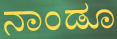
ನಾಂಡೂ